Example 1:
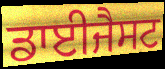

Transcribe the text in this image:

ਡਾਈਜੈਸਟ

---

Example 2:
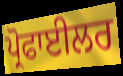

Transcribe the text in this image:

ਪ੍ਰੋਫਾਈਲਰ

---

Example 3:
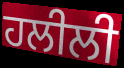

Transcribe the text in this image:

ਹਲੀਲੀ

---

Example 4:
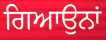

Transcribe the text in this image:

ਗਿਆਉਨਾਂ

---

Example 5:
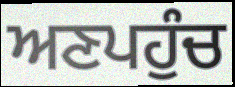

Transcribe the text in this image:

ਅਣਪਹੁੰਚ